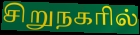
சிறுநகரில்